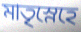
মাতৃস্নেহে